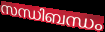
സന്ധിബന്ധം